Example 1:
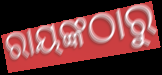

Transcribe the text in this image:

ରାୟଙ୍କଠାରୁ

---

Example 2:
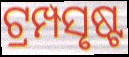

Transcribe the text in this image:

ଟ୍ରମ୍ପସୃଷ୍ଟ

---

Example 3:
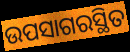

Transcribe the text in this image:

ଉପସାଗରସ୍ଥିତ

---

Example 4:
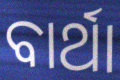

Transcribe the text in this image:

ବାର୍ଥା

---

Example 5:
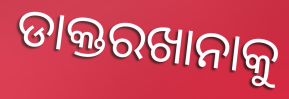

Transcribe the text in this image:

ଡାକ୍ତରଖାନାକୁ